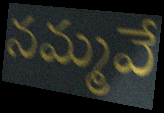
నమ్మవే